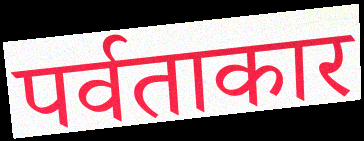
पर्वताकार